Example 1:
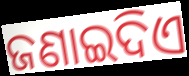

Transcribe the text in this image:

ଜଣାଇଦିଏ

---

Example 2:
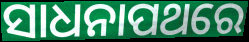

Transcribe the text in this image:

ସାଧନାପଥରେ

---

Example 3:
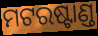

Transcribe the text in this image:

ମଟରଷ୍ଟାଣ୍ଡ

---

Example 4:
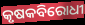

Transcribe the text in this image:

କୃଷକବିରୋଧୀ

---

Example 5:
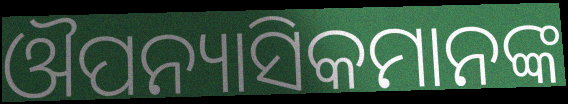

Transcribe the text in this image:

ଔପନ୍ୟାସିକମାନଙ୍କ